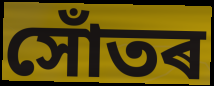
সোঁতৰ